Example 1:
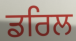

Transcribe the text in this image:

ਡਰਿਲ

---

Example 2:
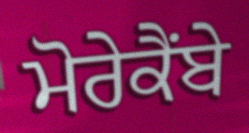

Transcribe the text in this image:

ਮੋਰੇਕੈਂਬੇ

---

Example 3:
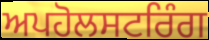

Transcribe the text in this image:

ਅਪਹੋਲਸਟਰਿੰਗ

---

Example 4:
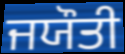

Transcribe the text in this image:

ਜਯੌਤੀ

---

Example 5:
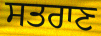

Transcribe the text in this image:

ਸਤਰਾਣ